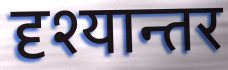
दृश्यान्तर